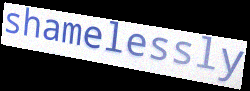
shamelessly